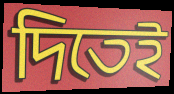
দিতেই